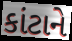
કાંટાને